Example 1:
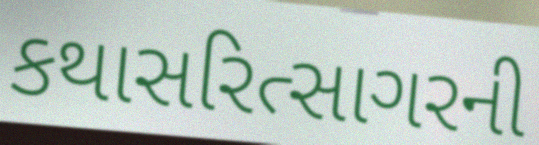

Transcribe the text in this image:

કથાસરિત્સાગરની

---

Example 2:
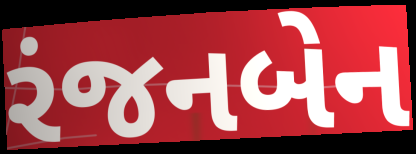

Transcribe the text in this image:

રંજનબેન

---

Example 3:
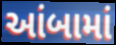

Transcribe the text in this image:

આંબામાં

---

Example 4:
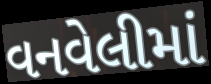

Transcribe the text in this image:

વનવેલીમાં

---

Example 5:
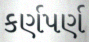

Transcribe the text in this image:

કર્ણપર્ણ